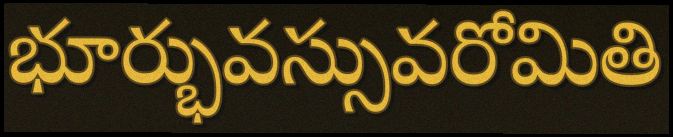
భూర్భువస్సువరోమితి